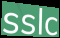
sslc